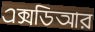
এক্সডিআর